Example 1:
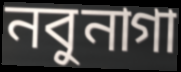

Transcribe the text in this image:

নবুনাগা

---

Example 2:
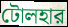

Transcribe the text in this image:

টোলহার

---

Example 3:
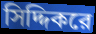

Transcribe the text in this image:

সিদ্দিকরে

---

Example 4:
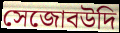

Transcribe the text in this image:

সেজোবউদি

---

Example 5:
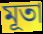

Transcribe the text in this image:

মূতা